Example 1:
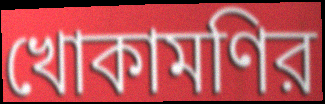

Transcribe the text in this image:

খোকামণির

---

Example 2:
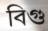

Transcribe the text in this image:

বিগু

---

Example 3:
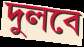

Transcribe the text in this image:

দুলবে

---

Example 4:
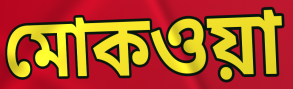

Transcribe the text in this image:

মোকওয়া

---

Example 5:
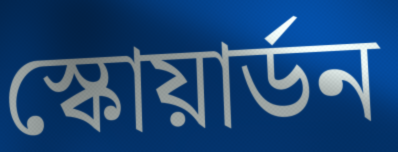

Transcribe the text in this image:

স্কোয়ার্ডন